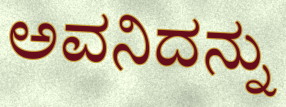
ಅವನಿದನ್ನು